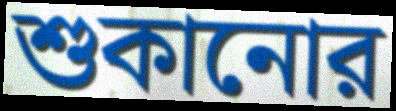
শুকানোর